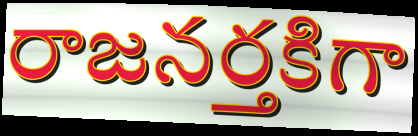
రాజనర్తకిగా